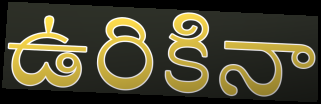
ఉరికినా